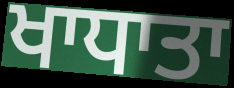
ਖਾਧਾਤਾ